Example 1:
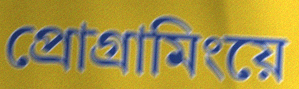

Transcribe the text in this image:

প্রোগ্রামিংয়ে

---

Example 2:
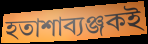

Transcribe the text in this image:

হতাশাব্যঞ্জকই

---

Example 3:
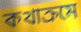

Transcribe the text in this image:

কথাক্রমে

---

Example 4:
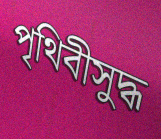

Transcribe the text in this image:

পৃথিবীসুদ্ধ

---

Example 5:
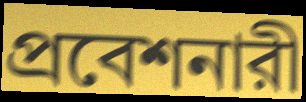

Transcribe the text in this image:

প্রবেশনারী